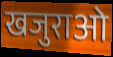
खजुराओ